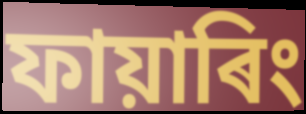
ফায়াৰিং